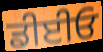
ਡੀਈਓ